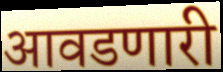
आवडणारी